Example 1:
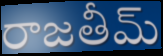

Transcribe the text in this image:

రాజతీమ్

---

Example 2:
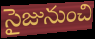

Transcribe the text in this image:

సైజునుంచి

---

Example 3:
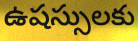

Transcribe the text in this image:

ఉషస్సులకు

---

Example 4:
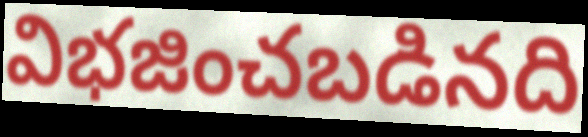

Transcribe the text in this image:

విభజించబడినది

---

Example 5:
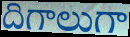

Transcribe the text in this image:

దిగాలుగా